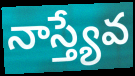
నాస్త్యేవ